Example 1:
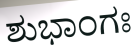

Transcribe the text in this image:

ಶುಭಾಂಗಃ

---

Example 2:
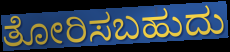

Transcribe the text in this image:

ತೋರಿಸಬಹುದು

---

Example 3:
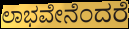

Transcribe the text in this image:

ಲಾಭವೇನೆಂದರೆ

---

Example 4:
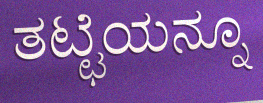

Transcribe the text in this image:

ತಟ್ಟೆಯನ್ನೂ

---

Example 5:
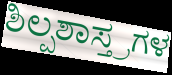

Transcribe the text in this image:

ಶಿಲ್ಪಶಾಸ್ತ್ರಗಳ